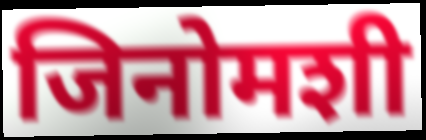
जिनोमशी